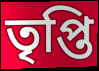
তৃপ্তি